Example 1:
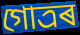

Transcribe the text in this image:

গোত্ৰৰ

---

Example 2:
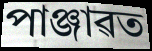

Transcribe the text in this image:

পাঞ্জাৱত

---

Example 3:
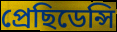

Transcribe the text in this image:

প্ৰেছিডেন্সি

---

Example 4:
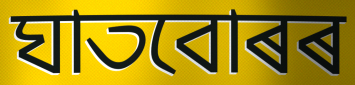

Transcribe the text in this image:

ঘাতবোৰৰ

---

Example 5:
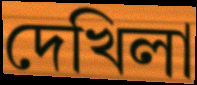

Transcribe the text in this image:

দেখিলা